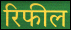
रिफील